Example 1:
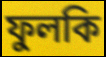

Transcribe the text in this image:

ফুলকি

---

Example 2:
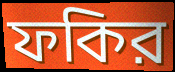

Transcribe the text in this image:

ফকির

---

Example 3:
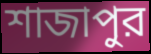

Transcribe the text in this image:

শাজাপুর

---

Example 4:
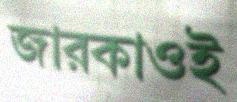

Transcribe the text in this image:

জারকাওই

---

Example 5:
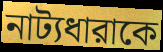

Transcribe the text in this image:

নাট্যধারাকে